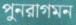
পুনরাগমন